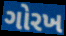
ગોરખ